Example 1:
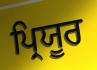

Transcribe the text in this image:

ਪ੍ਰਿਯੂਰ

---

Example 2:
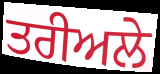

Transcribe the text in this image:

ਤਰੀਅਲੇ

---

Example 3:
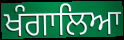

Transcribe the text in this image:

ਖੰਗਾਲਿਆ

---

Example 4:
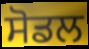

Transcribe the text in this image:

ਸੋਡਲ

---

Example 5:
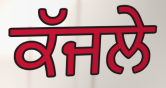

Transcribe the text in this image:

ਕੱਜਲੇ